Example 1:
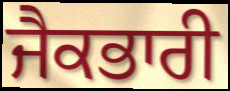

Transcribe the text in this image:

ਜੈਕਭਾਰੀ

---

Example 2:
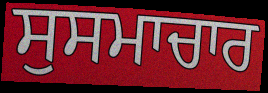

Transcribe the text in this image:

ਸੁਸਮਾਚਾਰ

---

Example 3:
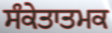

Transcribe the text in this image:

ਸੰਕੇਤਾਤਮਕ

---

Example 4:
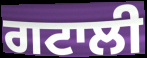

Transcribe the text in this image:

ਗਟਾਲੀ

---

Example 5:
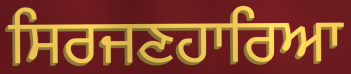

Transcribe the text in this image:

ਸਿਰਜਣਹਾਰਿਆ